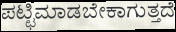
ಪಟ್ಟಿಮಾಡಬೇಕಾಗುತ್ತದೆ